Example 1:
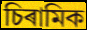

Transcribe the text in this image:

চিৰামিক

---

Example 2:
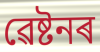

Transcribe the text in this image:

ৱেষ্টনৰ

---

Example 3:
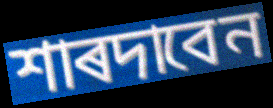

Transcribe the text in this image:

শাৰদাবেন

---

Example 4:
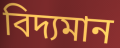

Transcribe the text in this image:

বিদ্যমান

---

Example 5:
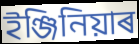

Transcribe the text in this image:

ইঞ্জিনিয়াৰ